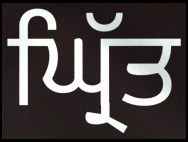
ਘ੍ਰਿੱਤ